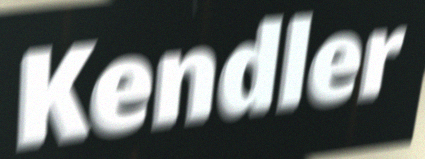
Kendler